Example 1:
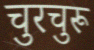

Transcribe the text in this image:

चुरचुरू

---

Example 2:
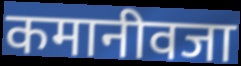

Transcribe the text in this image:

कमानीवजा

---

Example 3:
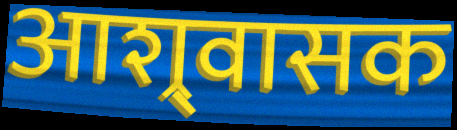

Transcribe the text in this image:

आश्र्वासक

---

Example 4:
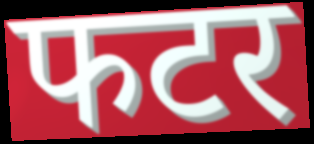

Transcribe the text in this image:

फटर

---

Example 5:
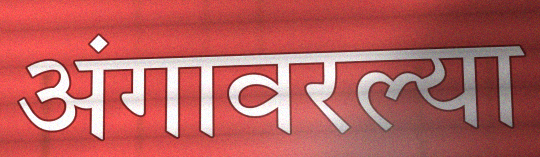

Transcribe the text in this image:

अंगावरल्या